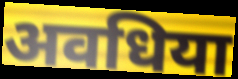
अवधिया